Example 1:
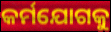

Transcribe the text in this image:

କର୍ମଯୋଗକୁ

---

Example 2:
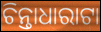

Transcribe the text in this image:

ଚିନ୍ତାଧାରାଟା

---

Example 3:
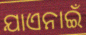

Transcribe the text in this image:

ଯାଏନାଇଁ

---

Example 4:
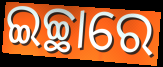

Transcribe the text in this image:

ଇଚ୍ଛାରେ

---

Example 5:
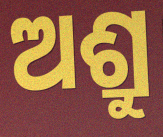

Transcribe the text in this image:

ଅଶ୍ରୁ